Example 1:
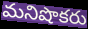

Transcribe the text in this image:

మనిషొకరు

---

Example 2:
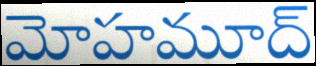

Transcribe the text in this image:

మోహమూద్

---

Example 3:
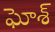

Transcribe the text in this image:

ఘోశ్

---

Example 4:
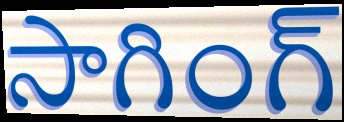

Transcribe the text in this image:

సాగింగ్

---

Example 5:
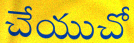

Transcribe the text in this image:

చేయుచో